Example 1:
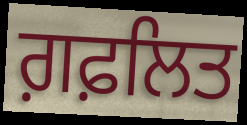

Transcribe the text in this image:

ਗ਼ਫ਼ਲਿਤ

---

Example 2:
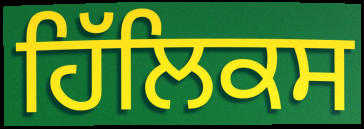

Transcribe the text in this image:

ਹਿੱਲਿਕਸ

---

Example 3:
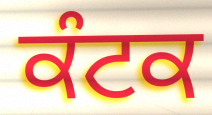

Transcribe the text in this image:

ਕੰਟਕ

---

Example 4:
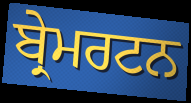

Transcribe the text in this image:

ਬ੍ਰੇਮਰਟਨ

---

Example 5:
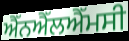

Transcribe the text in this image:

ਐੱਨਐੱਲਐੱਮਸੀ